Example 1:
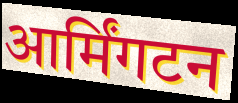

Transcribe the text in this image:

आर्मिंगटन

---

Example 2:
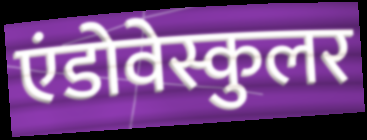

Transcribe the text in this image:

एंडोवेस्कुलर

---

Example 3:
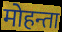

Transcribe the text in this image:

मोहन्ता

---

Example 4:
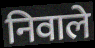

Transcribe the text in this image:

निवाले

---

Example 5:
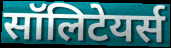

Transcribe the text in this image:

सॉलिटेयर्स